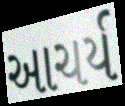
આચર્ય